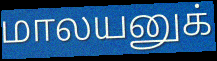
மாலயனுக்